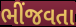
ભીંજવતા